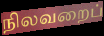
நிலவறைப்